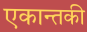
एकान्तकी